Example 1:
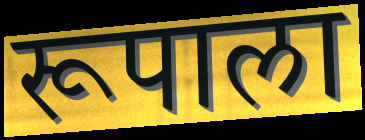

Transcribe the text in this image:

रूपाला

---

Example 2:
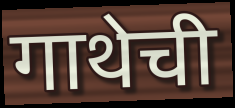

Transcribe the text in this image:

गाथेची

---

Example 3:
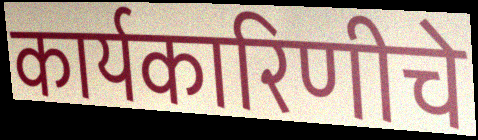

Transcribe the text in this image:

कार्यकारिणीचे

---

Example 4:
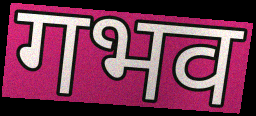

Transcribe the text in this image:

गभव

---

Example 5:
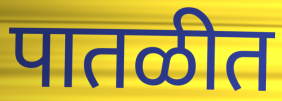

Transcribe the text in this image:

पातळीत